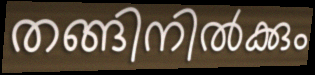
തങ്ങിനിൽക്കും